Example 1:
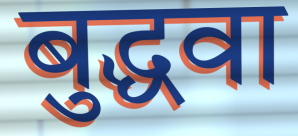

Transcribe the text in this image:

बुद्धवा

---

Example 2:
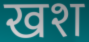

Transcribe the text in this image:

खश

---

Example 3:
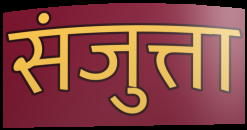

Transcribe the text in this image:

संजुत्ता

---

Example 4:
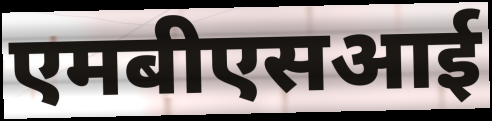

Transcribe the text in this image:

एमबीएसआई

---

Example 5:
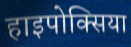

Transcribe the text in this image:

हाइपोक्सिया